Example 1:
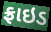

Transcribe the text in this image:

ફ્રાઇડ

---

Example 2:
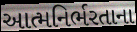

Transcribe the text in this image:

આત્મનિર્ભરતાના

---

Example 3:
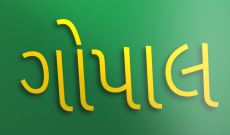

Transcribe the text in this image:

ગોપાલ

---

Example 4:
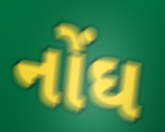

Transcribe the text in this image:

નોંઘ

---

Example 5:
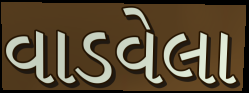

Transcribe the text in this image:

વાડવેલા